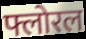
फ्लोरल